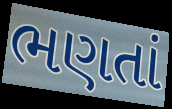
ભણતાં